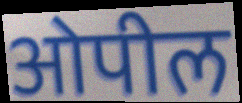
ओपील